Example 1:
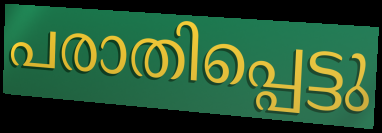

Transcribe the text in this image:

പരാതിപ്പെട്ടു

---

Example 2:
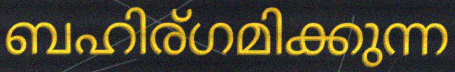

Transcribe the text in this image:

ബഹിര്ഗമിക്കുന്ന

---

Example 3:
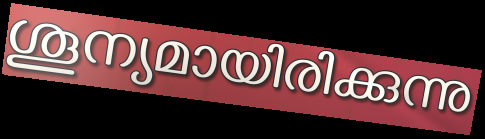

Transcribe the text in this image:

ശൂന്യമായിരിക്കുന്നു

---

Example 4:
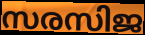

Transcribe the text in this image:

സരസിജ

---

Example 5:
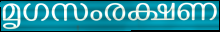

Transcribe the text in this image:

മൃഗസംരക്ഷണ